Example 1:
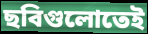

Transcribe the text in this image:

ছবিগুলোতেই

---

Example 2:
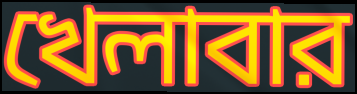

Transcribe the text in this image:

খেলাবার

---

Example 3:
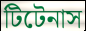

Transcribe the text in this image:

টিটেনাস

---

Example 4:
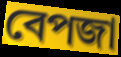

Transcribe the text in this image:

বেপজা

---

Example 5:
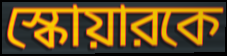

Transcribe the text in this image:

স্কোয়ারকে